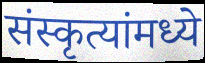
संस्कृत्यांमध्ये